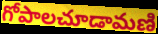
గోపాలచూడామణి